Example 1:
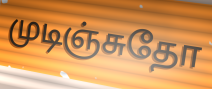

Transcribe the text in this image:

முடிஞ்சுதோ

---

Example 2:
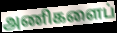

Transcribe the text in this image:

அணிகளைப்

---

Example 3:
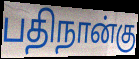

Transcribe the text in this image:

பதிநான்கு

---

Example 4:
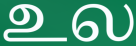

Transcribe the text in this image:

உல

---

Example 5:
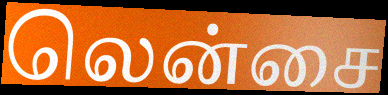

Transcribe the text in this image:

லென்சை